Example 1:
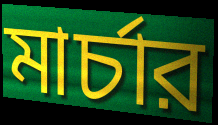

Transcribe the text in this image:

মার্চার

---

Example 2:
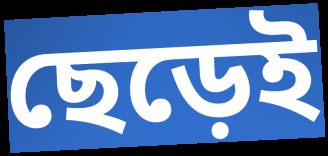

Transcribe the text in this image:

ছেড়েই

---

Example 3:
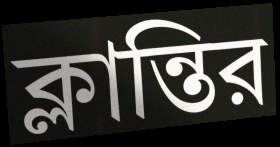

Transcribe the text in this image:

ক্লান্তির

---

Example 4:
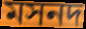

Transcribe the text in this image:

মসনদ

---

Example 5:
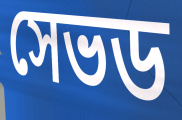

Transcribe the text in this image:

সেভড